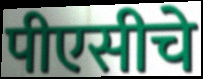
पीएसीचे